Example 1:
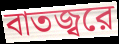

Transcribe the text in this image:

বাতজ্বরে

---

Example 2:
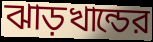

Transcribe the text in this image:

ঝাড়খান্ডের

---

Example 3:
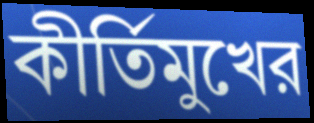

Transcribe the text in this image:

কীর্তিমুখের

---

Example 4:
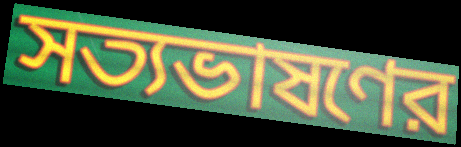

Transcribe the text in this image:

সত্যভাষণের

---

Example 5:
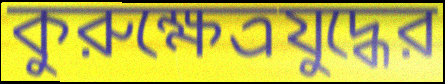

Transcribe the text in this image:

কুরুক্ষেত্রযুদ্ধের